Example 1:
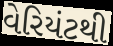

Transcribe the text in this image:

વેરિયંટથી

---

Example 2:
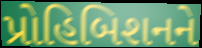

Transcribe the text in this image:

પ્રોહિબિશનને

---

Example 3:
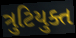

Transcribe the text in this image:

ત્રુટિયુક્ત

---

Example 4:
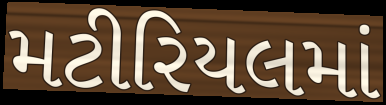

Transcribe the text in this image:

મટીરિયલમાં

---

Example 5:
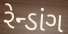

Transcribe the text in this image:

રેન્ડાંગ